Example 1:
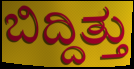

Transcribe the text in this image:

ಬಿದ್ದಿತ್ತು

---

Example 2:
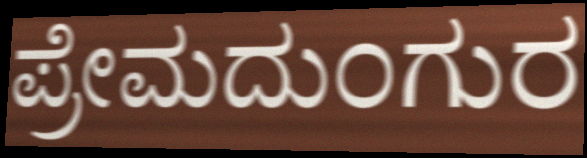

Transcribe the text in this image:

ಪ್ರೇಮದುಂಗುರ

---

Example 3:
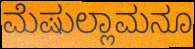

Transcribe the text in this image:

ಮೆಷುಲ್ಲಾಮನೂ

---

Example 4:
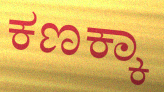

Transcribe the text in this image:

ಕಣಕ್ಕಾ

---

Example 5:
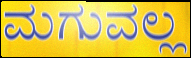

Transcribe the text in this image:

ಮಗುವಲ್ಲ